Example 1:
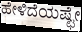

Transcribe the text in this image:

ಹೇಳಿದೆಯಷ್ಟೇ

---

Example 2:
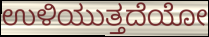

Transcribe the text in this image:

ಉಳಿಯುತ್ತದೆಯೋ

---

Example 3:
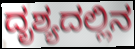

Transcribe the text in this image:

ದೃಶ್ಯದಲ್ಲಿನ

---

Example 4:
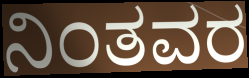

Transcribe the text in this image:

ನಿಂತವರ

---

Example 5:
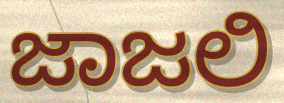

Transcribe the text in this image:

ಜಾಜಲಿ